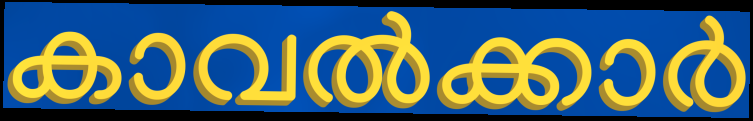
കാവൽക്കാർ